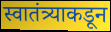
स्वातंत्र्याकडून